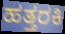
ಹತ್ತರಕಿ